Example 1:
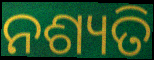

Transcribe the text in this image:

ନଶ୍ୟତି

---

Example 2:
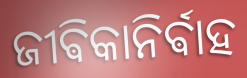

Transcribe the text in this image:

ଜୀଵିକାନିର୍ଵାହ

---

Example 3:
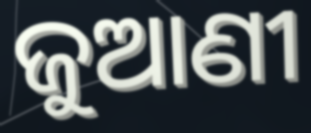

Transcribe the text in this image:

ଜୁଆଣୀ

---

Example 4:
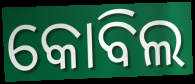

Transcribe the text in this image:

କୋବିଲ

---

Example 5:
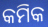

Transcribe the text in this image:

କମିକ